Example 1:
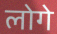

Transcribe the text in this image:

लोगे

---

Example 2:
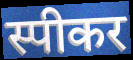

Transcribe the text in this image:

स्पीकर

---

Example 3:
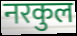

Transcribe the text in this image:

नरकुल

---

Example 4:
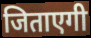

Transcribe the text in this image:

जिताएगी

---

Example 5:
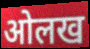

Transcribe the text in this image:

ओलख